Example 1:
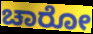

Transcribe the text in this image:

ಚಾರೋ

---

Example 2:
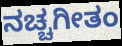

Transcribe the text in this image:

ನಚ್ಚಗೀತಂ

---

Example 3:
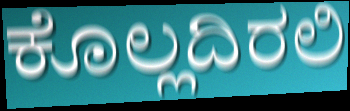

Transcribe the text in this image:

ಕೊಲ್ಲದಿರಲಿ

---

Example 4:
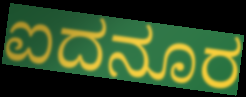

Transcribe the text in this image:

ಐದನೂರ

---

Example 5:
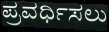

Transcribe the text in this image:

ಪ್ರವರ್ಧಿಸಲು